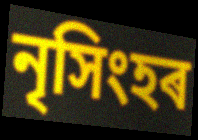
নৃসিংহৰ